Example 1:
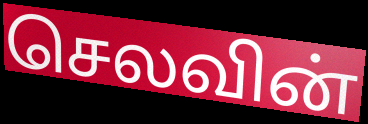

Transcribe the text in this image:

செலவின்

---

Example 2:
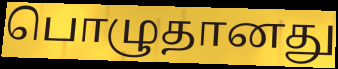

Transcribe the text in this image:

பொழுதானது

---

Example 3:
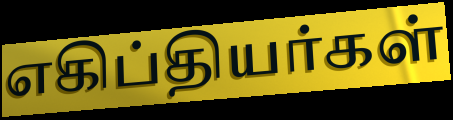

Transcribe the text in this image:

எகிப்தியர்கள்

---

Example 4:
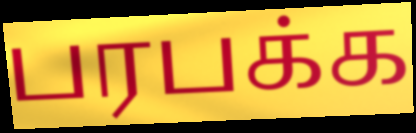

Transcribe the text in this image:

பரபக்க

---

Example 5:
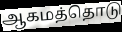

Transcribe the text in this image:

ஆகமத்தொடு